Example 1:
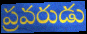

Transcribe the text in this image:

ప్రవరుడు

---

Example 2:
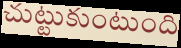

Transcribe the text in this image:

చుట్టుకుంటుంది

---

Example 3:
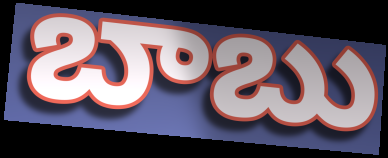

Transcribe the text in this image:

బాబు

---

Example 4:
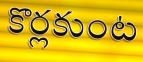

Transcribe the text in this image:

కొర్లకుంట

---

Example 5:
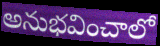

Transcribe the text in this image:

అనుభవించాలో